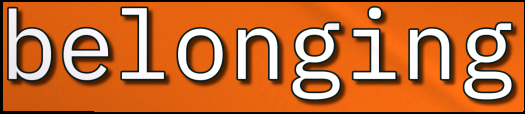
belonging